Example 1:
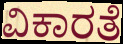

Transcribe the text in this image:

ವಿಕಾರತೆ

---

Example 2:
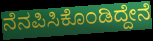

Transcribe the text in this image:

ನೆನಪಿಸಿಕೊಂಡಿದ್ದೇನೆ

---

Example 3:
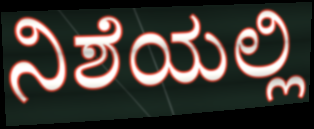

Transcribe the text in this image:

ನಿಶೆಯಲ್ಲಿ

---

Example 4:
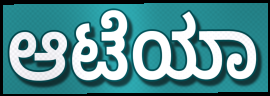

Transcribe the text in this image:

ಆಟೆಯಾ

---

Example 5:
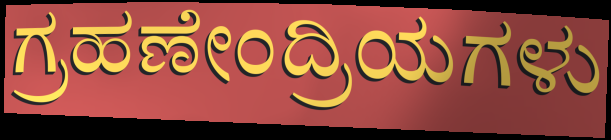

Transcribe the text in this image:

ಗ್ರಹಣೇಂದ್ರಿಯಗಳು